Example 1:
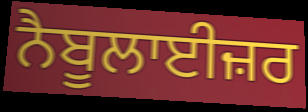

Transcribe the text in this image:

ਨੈਬੂਲਾਈਜ਼ਰ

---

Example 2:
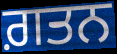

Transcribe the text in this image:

ਗ਼ਤਨ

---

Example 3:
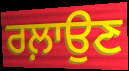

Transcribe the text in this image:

ਰਲ਼ਾਉਣ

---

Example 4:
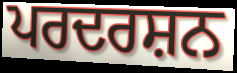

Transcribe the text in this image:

ਪਰਦਰਸ਼ਨ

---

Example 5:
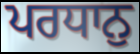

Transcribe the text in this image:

ਪਰਧਾਨੁ